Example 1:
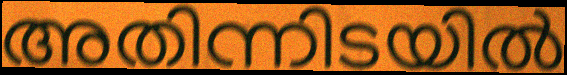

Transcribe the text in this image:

അതിന്നിടയിൽ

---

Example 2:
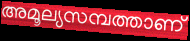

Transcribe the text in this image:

അമൂല്യസമ്പത്താണ്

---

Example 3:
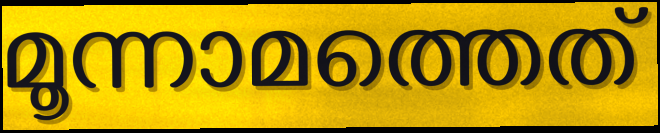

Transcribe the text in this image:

മൂന്നാമത്തെത്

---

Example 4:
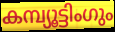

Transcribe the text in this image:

കമ്പ്യൂട്ടിംഗും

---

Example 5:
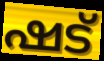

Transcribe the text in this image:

ഷട്